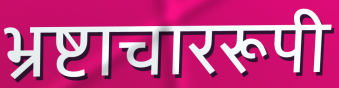
भ्रष्टाचाररूपी